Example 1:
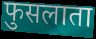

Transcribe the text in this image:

फुसलाता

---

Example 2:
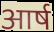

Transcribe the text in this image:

आर्ष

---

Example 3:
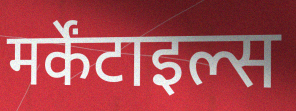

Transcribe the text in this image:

मर्केंटाइल्स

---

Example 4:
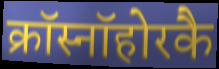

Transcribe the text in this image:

क्रॉस्नॉहोरकै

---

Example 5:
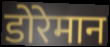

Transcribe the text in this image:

डोरेमान